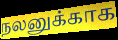
நலனுக்காக